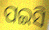
ପଇସି